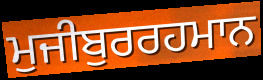
ਮੁਜੀਬੁਰਰਹਮਾਨ